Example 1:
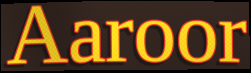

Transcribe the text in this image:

Aaroor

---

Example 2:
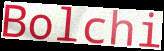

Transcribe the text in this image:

Bolchi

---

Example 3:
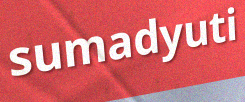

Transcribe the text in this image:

sumadyuti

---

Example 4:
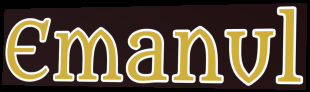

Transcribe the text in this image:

Emanul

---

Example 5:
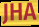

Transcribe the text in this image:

JHA